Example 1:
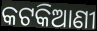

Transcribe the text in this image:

କଟକିଆଣୀ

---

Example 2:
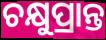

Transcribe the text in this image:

ଚକ୍ଷୁପ୍ରାନ୍ତ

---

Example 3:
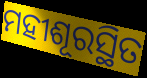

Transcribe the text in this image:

ମହୀଶୂରସ୍ଥିତ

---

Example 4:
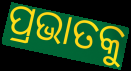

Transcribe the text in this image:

ପ୍ରଭାତକୁ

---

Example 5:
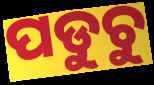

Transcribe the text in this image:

ପଡୁଚୁ